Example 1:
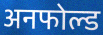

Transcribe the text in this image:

अनफोल्ड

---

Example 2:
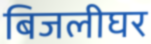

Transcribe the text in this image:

बिजलीघर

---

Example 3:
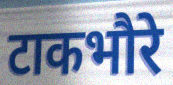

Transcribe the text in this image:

टाकभौरे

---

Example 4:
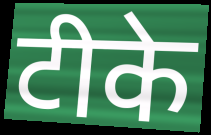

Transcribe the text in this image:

टीके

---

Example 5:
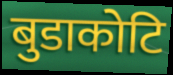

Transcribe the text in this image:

बुडाकोटि